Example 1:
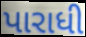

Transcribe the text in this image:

પારાધી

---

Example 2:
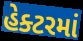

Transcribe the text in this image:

હેક્ટરમાં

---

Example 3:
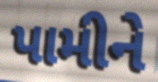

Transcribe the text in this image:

પામીને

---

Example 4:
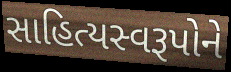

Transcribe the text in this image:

સાહિત્યસ્વરૂપોને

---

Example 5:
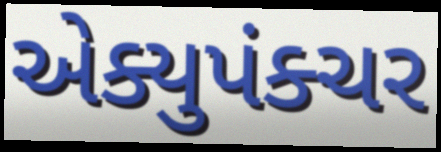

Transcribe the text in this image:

એક્યુપંક્ચર